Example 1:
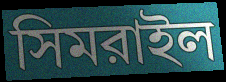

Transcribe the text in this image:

সিমরাইল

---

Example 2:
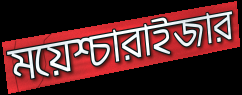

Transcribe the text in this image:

ময়েশ্চারাইজার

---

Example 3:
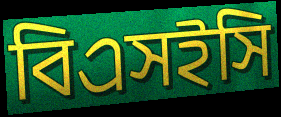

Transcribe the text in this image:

বিএসইসি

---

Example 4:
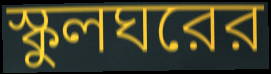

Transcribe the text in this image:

স্কুলঘরের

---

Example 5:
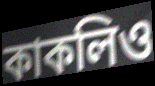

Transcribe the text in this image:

কাকলিও